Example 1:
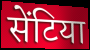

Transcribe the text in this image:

सेंटिया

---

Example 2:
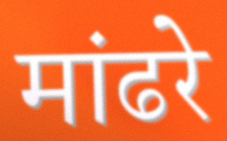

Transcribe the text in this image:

मांढरे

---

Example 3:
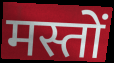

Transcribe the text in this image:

मस्तों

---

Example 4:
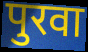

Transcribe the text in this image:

पुरवा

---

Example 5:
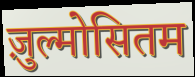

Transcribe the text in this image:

ज़ुल्मोसितम